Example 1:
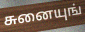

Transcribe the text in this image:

சுனையுங்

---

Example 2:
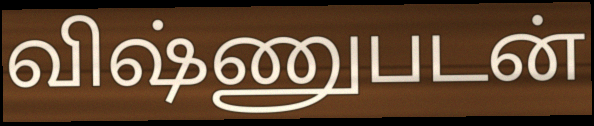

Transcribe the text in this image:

விஷ்ணுபடன்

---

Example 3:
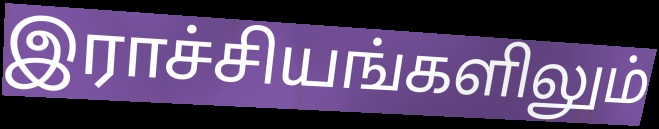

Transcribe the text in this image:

இராச்சியங்களிலும்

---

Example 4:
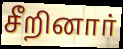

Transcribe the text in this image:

சீறினார்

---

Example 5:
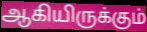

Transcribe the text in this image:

ஆகியிருக்கும்